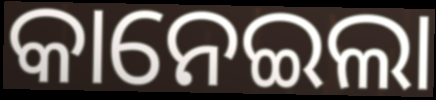
କାନେଇଲା